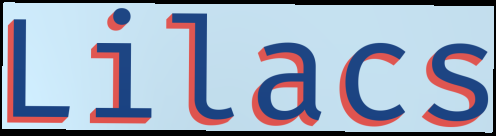
Lilacs